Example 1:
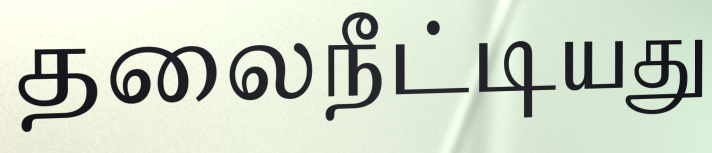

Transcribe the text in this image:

தலைநீட்டியது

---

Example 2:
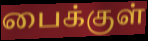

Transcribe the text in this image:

பைக்குள்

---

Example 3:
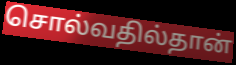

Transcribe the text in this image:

சொல்வதில்தான்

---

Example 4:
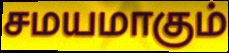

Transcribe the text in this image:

சமயமாகும்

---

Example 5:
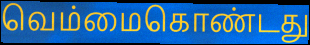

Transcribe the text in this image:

வெம்மைகொண்டது